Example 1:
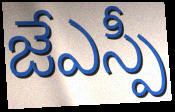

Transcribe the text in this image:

జేఎస్పీ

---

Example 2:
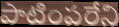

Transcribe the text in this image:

పాటింపరేని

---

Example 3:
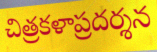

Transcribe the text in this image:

చిత్రకళాప్రదర్శన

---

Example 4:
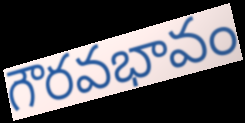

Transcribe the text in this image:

గౌరవభావం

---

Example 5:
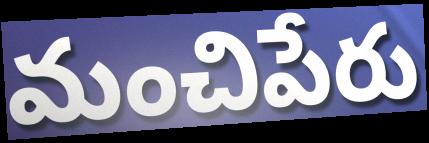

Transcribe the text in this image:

మంచిపేరు